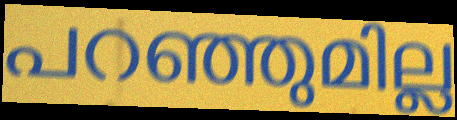
പറഞ്ഞുമില്ല